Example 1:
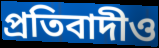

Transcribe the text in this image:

প্রতিবাদীও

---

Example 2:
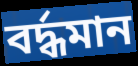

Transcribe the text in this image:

বর্দ্ধমান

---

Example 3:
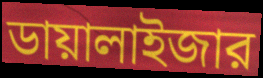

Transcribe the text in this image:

ডায়ালাইজার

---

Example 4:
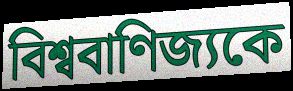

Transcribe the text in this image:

বিশ্ববাণিজ্যকে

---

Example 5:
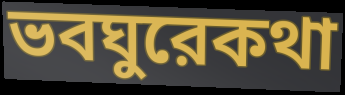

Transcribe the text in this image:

ভবঘুরেকথা